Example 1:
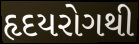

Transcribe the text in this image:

હૃદયરોગથી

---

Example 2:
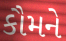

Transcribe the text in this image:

કૌમને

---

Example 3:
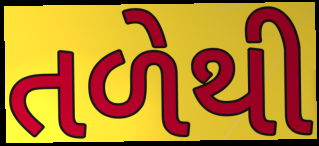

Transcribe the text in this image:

તળેથી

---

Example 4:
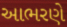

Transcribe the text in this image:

આભરણે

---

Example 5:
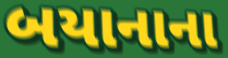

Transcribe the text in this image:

બયાનાના